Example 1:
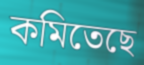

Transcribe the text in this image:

কমিতেছে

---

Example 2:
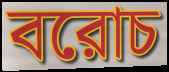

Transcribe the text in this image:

বরোচ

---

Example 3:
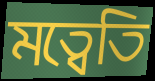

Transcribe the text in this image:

মত্বেতি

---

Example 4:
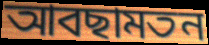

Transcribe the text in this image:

আবছামতন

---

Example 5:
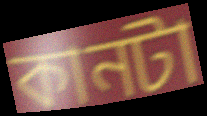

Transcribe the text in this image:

কানটা